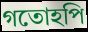
গতোহপি